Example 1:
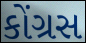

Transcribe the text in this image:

કોંગ્રસ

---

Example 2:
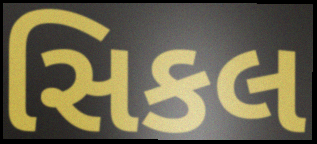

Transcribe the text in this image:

સિકલ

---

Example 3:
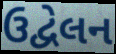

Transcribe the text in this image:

ઉદ્વેલન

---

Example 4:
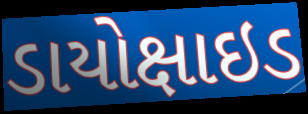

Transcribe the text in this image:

ડાયોક્ષાઇડ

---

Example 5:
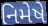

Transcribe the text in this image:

નિમેષે